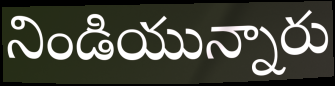
నిండియున్నారు